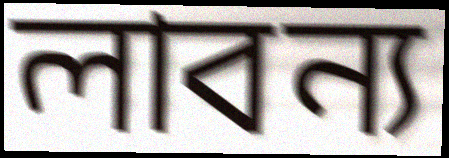
লাবন্য